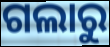
ଗଲାରୁ